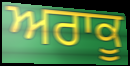
ਅਰਾਕੂ